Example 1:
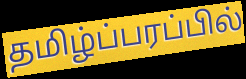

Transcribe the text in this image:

தமிழ்ப்பரப்பில்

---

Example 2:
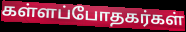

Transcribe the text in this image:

கள்ளப்போதகர்கள்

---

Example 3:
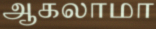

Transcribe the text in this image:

ஆகலாமா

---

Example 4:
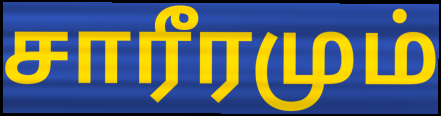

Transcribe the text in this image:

சாரீரமும்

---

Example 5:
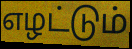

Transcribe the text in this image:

எழட்டும்